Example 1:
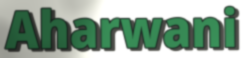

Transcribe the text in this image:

Aharwani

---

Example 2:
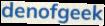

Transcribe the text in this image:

denofgeek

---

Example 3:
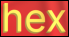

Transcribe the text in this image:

hex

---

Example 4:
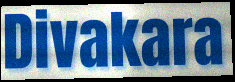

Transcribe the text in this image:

Divakara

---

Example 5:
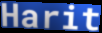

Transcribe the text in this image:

Harit